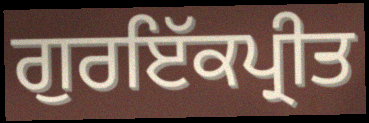
ਗੁਰਇੱਕਪ੍ਰੀਤ